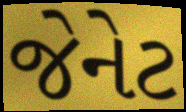
જેનેટ